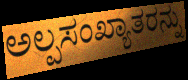
ಅಲ್ಪಸಂಖ್ಯಾತರನ್ನು